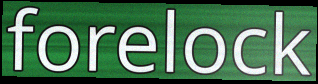
forelock